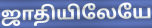
ஜாதியிலேயே